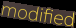
modified